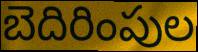
బెదిరింపుల